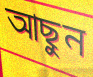
আছুন